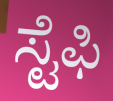
ಸ್ಟೆಫಿ